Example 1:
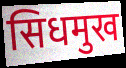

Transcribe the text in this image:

सिधमुख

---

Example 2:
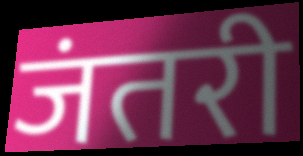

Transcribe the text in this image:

जंतरी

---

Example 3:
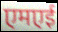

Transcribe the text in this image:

एमएई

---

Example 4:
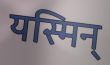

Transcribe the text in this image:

यस्मिन्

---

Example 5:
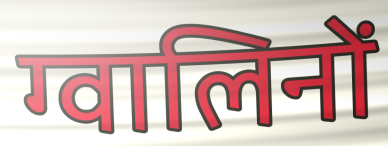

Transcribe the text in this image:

ग्वालिनों